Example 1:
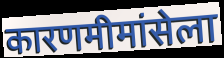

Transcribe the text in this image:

कारणमीमांसेला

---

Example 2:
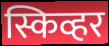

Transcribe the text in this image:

स्किव्हर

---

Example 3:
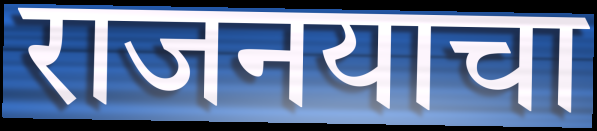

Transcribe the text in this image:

राजनयाचा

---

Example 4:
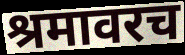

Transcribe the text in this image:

श्रमावरच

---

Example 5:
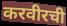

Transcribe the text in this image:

करवीरची